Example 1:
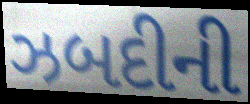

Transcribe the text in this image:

ઝબદીની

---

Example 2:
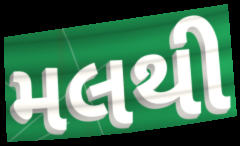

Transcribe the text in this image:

મલથી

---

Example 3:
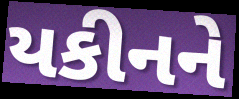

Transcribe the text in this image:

યકીનને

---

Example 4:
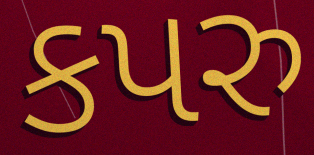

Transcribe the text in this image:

કપરુ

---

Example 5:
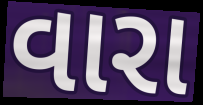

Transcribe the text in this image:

વારા